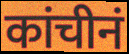
कांचीनं